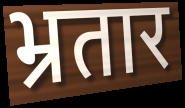
भ्रतार